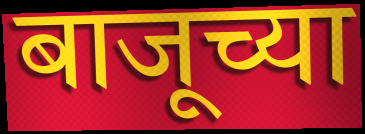
बाजूच्या